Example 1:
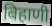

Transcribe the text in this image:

बिहाणी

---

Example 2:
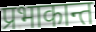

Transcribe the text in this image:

प्रभाकान्त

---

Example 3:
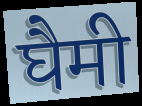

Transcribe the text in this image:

घैमी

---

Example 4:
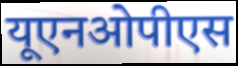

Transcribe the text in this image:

यूएनओपीएस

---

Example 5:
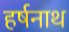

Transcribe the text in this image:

हर्षनाथ